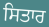
ਸਿਤਾਰ